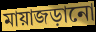
মায়াজড়ানো